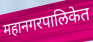
महानगरपालिकेत